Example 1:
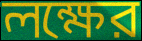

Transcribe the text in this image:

লক্ষের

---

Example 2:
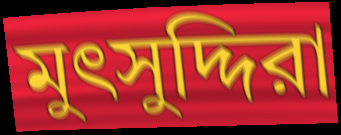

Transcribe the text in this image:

মুৎসুদ্দিরা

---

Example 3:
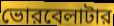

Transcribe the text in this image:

ভোরবেলাটার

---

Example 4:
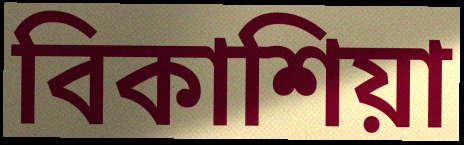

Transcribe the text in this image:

বিকাশিয়া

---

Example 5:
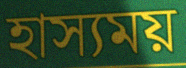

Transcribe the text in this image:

হাস্যময়